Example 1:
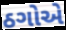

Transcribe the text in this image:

ઠગોએ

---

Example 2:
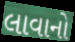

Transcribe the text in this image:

લાવાનો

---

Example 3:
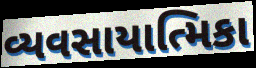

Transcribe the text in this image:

વ્યવસાયાત્મિકા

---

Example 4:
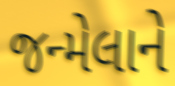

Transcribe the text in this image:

જન્મેલાને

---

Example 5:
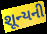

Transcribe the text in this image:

શૂન્યની